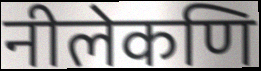
नीलेकणि